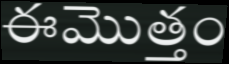
ఈమొత్తం